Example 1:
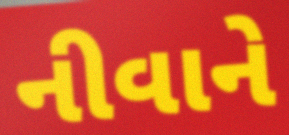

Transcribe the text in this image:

નીવાને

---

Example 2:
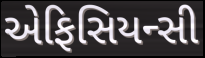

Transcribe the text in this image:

એફિસિયન્સી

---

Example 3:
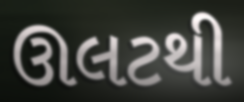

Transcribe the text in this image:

ઊલટથી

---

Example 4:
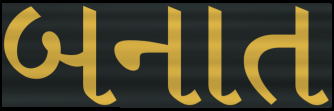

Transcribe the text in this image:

બનાત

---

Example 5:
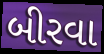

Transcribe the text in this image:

બીરવા